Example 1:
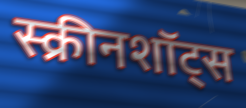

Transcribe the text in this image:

स्क्रीनशॉट्स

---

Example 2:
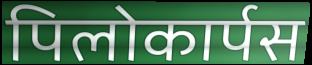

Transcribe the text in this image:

पिलोकार्पस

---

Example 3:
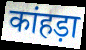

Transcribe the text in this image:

कांहड़ा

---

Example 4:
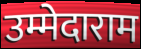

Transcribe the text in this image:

उम्मेदाराम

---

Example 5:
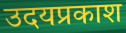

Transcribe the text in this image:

उदयप्रकाश